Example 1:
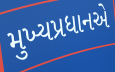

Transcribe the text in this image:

મુખ્યપ્રધાનએ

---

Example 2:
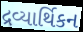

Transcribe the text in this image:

દ્રવ્યાર્થિકન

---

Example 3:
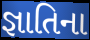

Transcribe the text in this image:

જ્ઞાતિના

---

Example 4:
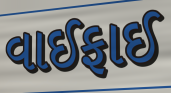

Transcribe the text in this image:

વાઈફાઈ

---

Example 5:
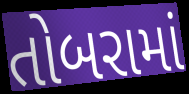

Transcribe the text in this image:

તોબરામાં